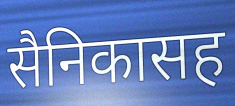
सैनिकासह